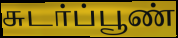
சுடர்ப்பூண்